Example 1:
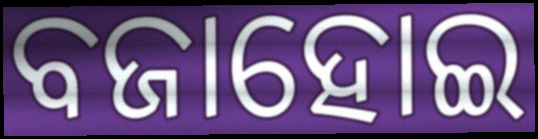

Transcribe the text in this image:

ବଜାହୋଇ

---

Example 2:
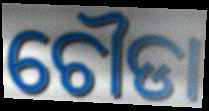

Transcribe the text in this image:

ଚୌଡା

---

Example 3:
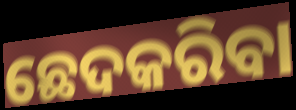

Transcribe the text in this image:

ଛେଦକରିବା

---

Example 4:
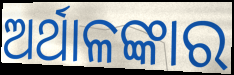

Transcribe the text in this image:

ଅର୍ଥାଳଙ୍କାର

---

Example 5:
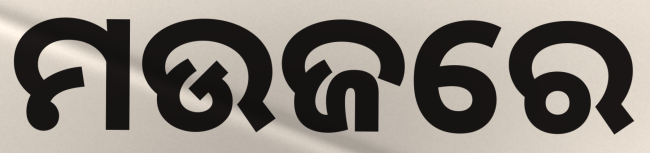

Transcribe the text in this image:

ମଉଜରେ